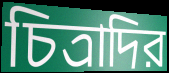
চিত্রাদির